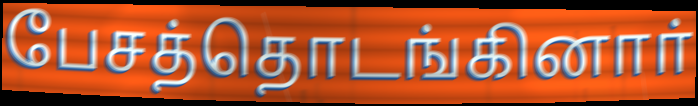
பேசத்தொடங்கினார்